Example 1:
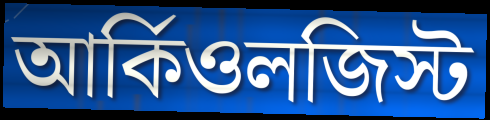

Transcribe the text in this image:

আর্কিওলজিস্ট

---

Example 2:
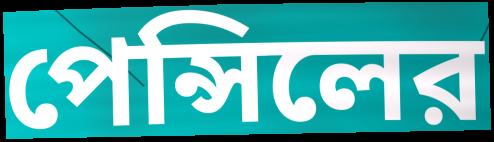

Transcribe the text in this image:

পেন্সিলের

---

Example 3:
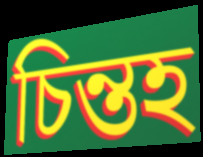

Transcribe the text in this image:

চিন্তহ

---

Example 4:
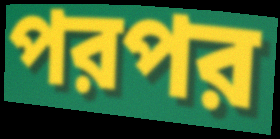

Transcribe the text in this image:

পরপর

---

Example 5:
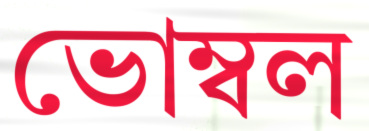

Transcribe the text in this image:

ভোম্বল